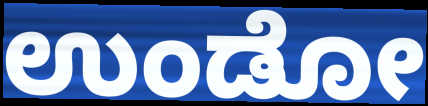
ಉಂಡೋ